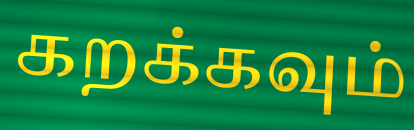
கறக்கவும்